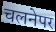
चलनेपर